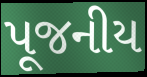
પૂજનીય